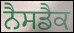
ਨੈਸਡੈਕ